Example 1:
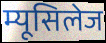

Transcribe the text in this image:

म्यूसिलेज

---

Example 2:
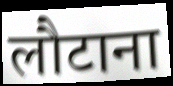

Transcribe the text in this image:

लौटाना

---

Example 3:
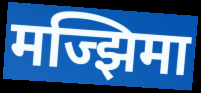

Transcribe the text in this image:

मज्झिमा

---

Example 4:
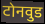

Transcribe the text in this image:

टोनवुड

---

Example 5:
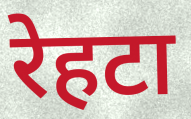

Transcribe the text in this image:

रेहटा